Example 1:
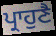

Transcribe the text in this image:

ਪ੍ਰਾਹੁਣੈ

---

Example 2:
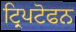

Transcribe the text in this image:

ਟ੍ਰਿਪਟੋਫਨ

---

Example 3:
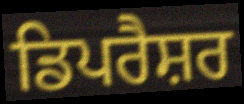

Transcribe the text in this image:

ਡਿਪਰੈਸ਼ਰ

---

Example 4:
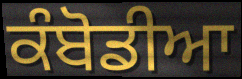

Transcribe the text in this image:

ਕੰਬੋਡੀਆ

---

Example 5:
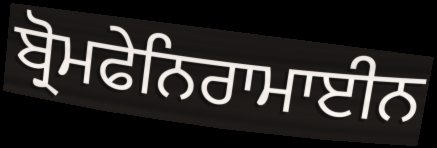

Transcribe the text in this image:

ਬ੍ਰੋਮਫੇਨਿਰਾਮਾਈਨ